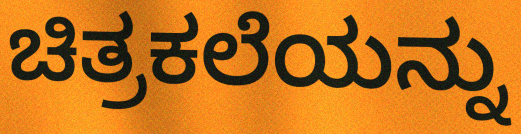
ಚಿತ್ರಕಲೆಯನ್ನು